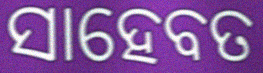
ସାହେବତ